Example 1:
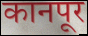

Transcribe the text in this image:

कानपूर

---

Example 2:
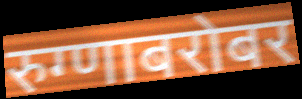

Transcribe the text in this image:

रुग्णाबरोबर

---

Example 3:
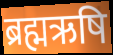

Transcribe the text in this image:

ब्रह्मऋषि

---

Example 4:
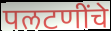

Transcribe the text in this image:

पलटणींचे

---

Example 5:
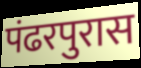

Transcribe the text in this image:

पंढरपुरास